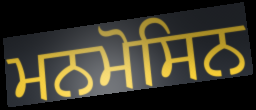
ਮਨਮੋਸਿਨ